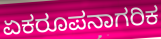
ಏಕರೂಪನಾಗರಿಕ